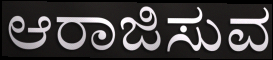
ಆರಾಜಿಸುವ